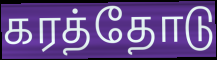
கரத்தோடு